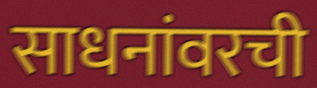
साधनांवरची